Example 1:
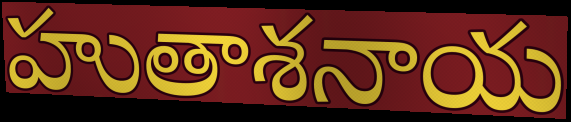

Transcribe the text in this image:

హుతాశనాయ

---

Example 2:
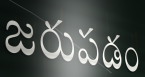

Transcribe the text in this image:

జరుపడం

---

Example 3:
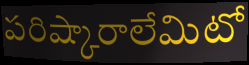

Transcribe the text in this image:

పరిష్కారాలేమిటో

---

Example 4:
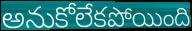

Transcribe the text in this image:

అనుకోలేకపోయింది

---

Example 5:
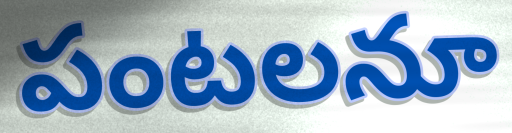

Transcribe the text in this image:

పంటలనూ